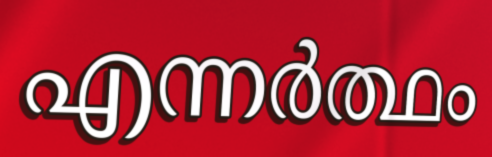
എന്നർത്ഥം